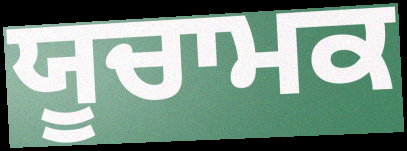
ਯੂਚਾਮਕ